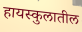
हायस्कुलातील